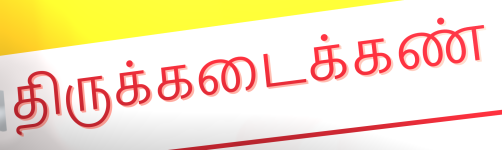
திருக்கடைக்கண்